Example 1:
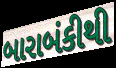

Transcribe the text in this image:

બારાબંકીથી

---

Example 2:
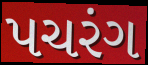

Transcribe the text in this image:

પચરંગ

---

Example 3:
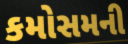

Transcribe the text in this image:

કમોસમની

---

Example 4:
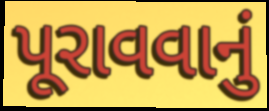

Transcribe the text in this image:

પૂરાવવાનું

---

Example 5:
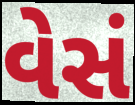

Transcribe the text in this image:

વેસં